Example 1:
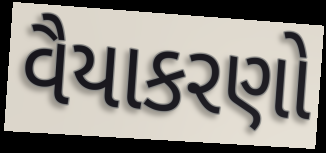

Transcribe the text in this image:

વૈયાકરણો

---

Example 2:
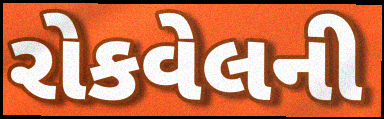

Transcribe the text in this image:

રોકવેલની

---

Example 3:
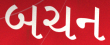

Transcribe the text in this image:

બચન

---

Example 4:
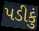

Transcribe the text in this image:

પડીકું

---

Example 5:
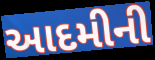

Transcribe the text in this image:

આદમીની